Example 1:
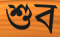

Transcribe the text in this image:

শুব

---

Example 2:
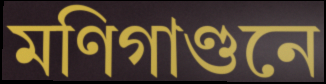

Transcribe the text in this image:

মণিগাণ্ডনে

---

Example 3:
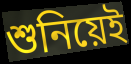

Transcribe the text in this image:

শুনিয়েই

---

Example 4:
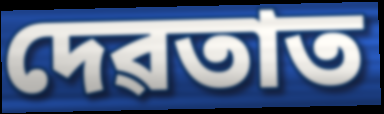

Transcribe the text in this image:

দেৱতাত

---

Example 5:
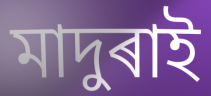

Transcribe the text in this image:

মাদুৰাই